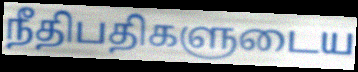
நீதிபதிகளுடைய